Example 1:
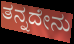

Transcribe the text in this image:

ತನ್ನದೇನು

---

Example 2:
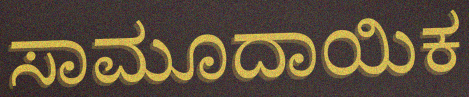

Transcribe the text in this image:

ಸಾಮೂದಾಯಿಕ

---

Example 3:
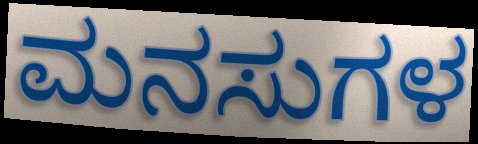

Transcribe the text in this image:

ಮನಸುಗಳ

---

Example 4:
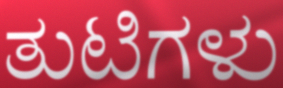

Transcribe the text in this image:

ತುಟಿಗಳು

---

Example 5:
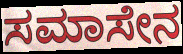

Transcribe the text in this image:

ಸಮಾಸೇನ